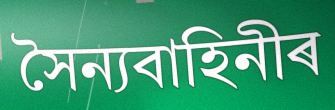
সৈন্যবাহিনীৰ